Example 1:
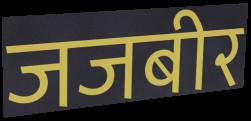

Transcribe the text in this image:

जजबीर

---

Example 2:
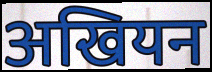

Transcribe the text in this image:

अखियन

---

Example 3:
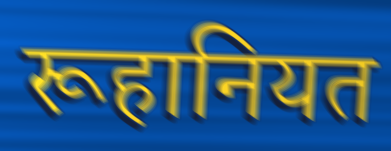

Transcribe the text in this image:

रूहानियत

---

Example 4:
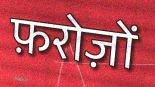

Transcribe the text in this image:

फ़रोज़ों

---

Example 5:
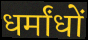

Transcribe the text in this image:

धर्मांधों